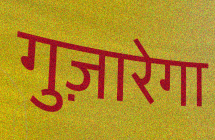
गुज़ारेगा